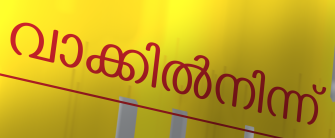
വാക്കിൽനിന്ന്